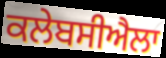
ਕਲੇਬਸੀਐਲਾ